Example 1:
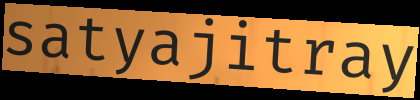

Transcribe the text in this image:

satyajitray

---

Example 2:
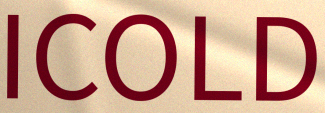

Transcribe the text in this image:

ICOLD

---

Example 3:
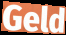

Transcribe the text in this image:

Geld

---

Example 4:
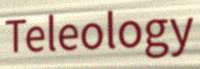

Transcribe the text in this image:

Teleology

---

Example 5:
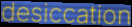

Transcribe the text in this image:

desiccation